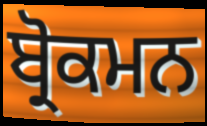
ਬ੍ਰੋਕਮਨ